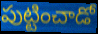
పుట్టించాడో